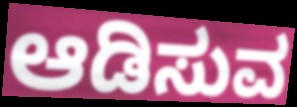
ಆಡಿಸುವ